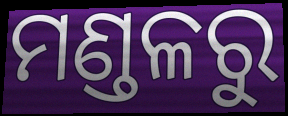
ମଣ୍ଡଳରୁ